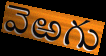
వెఱగు